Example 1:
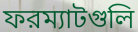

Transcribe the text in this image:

ফরম্যাটগুলি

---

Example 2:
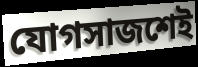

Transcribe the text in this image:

যোগসাজশেই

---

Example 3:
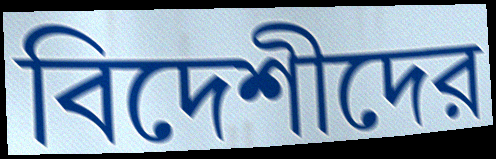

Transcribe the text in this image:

বিদেশীদের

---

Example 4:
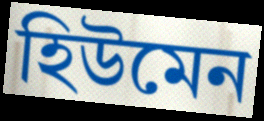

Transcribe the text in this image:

হিউমেন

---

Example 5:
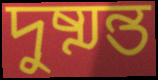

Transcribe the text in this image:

দুষ্মন্ত